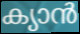
ക്യാൻ